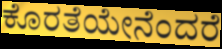
ಕೊರತೆಯೇನೆಂದರೆ